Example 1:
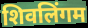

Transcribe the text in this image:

शिवलिंगम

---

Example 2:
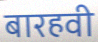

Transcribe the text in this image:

बारहवी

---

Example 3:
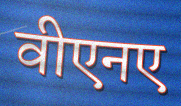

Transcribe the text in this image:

वीएनए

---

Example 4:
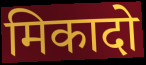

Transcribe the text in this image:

मिकादो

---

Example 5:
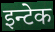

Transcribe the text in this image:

इन्टेक